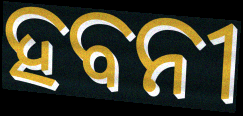
ହବନୀ